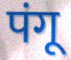
पंगू